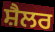
ਸ਼ੈਲਰ